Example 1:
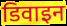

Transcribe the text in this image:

डिवाइन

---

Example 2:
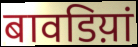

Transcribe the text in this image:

बावडिय़ां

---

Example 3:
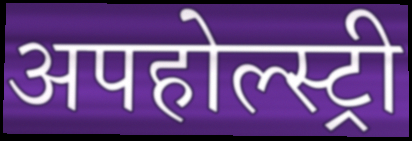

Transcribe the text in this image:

अपहोल्स्ट्री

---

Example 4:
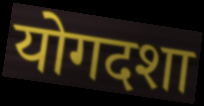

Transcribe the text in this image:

योगदशा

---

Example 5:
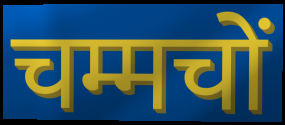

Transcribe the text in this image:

चम्मचों